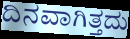
ದಿನವಾಗಿತ್ತದು